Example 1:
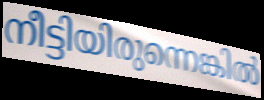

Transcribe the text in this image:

നീട്ടിയിരുന്നെങ്കിൽ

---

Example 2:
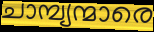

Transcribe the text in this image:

ചാമ്പ്യന്മാരെ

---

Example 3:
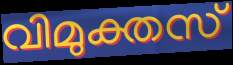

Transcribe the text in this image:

വിമുക്തസ്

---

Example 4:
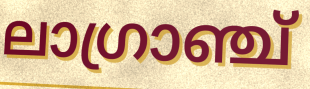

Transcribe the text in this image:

ലാഗ്രാഞ്ച്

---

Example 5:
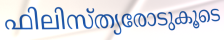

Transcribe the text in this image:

ഫിലിസ്ത്യരോടുകൂടെ